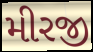
મીરજી